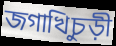
জগাখিচুড়ী